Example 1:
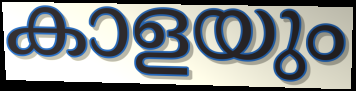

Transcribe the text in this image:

കാളയും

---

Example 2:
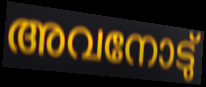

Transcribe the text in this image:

അവനോടു്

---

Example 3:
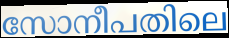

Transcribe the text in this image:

സോനീപതിലെ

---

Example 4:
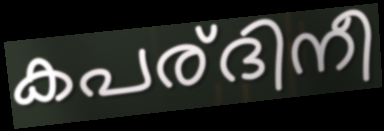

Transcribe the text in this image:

കപര്ദിനീ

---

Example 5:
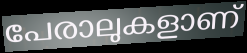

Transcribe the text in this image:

പേരാലുകളാണ്